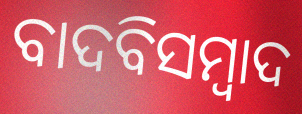
ବାଦବିସମ୍ବାଦ